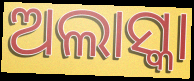
ଅଲାସ୍କା